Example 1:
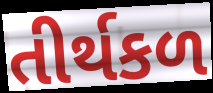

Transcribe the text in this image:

તીર્થકળ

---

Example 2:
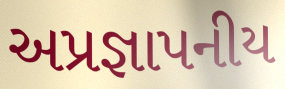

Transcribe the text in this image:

અપ્રજ્ઞાપનીય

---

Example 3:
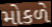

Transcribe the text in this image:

મોકળે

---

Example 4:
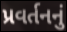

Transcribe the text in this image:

પ્રવર્તનનું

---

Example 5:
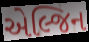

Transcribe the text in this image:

એલ્જિન